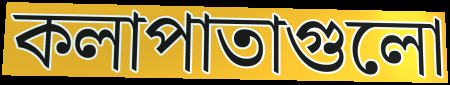
কলাপাতাগুলো